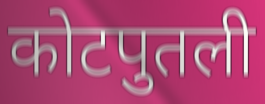
कोटपुतली